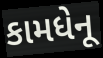
કામધેનૂ